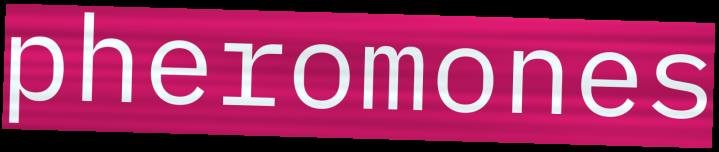
pheromones